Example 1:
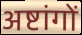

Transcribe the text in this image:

अष्टांगों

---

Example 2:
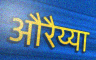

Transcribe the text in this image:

औरैय्या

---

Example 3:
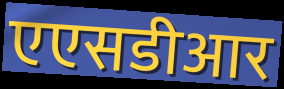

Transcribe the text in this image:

एएसडीआर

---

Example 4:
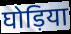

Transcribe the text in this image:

घोड़िया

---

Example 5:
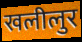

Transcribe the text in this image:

खलीलुर